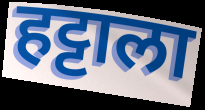
हट्टाला